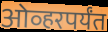
ओव्हरपर्यंत